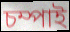
চম্পাই